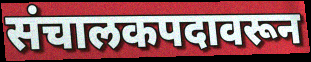
संचालकपदावरून